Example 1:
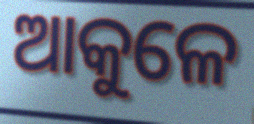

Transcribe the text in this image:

ଆକୁଳେ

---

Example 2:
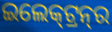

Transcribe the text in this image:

ଇଲେକ୍‍ଟ୍ରନ୍‍ର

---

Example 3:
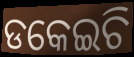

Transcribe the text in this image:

ଡକେଇଚି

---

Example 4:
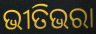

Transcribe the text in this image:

ଭୀତିଭରା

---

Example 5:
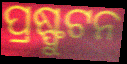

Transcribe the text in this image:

ପ୍ରଷ୍ଫୁଟନ